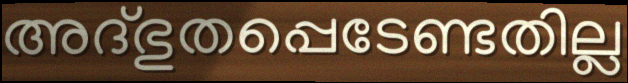
അദ്ഭുതപ്പെടേണ്ടതില്ല